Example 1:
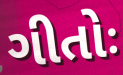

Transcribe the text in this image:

ગીતોઃ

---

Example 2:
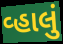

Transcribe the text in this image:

વ્હાલું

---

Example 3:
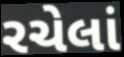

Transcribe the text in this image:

રચેલાં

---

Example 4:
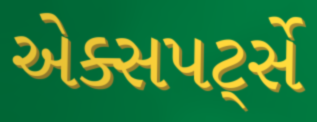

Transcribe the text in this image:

એક્સપર્ટ્સે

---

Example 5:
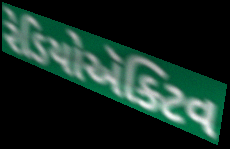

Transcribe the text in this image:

રેડિયોઍક્ટિવ